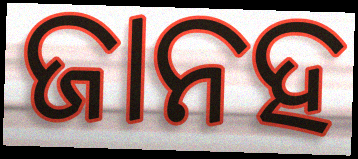
ଜାନହ